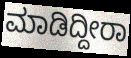
ಮಾಡಿದ್ದೀರಾ